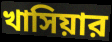
খাসিয়ার